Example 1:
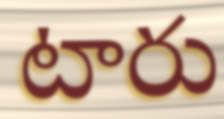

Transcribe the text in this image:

టారు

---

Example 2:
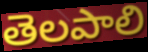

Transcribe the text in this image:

తెలపాలి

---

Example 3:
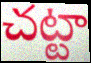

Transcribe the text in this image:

చట్టా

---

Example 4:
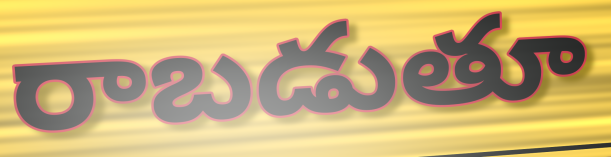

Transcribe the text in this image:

రాబడుతూ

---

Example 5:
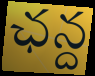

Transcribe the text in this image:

ఛన్ద